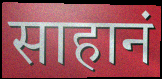
साहानं